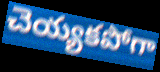
చెయ్యకపోగా